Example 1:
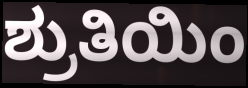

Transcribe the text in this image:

ಶ್ರುತಿಯಿಂ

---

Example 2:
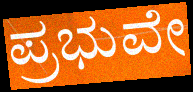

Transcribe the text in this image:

ಪ್ರಭುವೇ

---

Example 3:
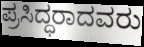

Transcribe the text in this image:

ಪ್ರಸಿದ್ಧರಾದವರು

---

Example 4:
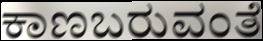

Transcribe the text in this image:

ಕಾಣಬರುವಂತೆ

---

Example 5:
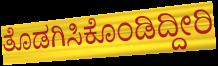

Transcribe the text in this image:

ತೊಡಗಿಸಿಕೊಂಡಿದ್ದೀರಿ